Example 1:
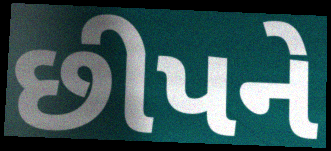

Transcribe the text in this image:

છીપને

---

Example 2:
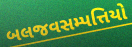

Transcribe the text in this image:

બલજવસમ્પત્તિયો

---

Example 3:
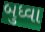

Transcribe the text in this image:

બુધ્વા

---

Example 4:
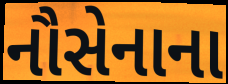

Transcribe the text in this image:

નૌસેનાના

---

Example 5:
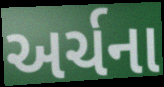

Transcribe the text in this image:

અર્ચના